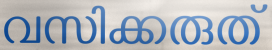
വസിക്കരുത്